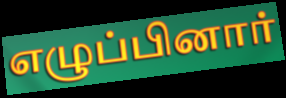
எழுப்பினார்